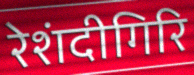
रेशंदीगिरि